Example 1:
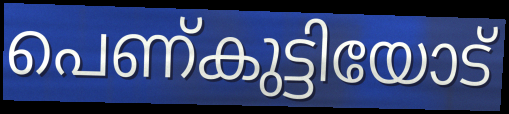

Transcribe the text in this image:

പെണ്കുട്ടിയോട്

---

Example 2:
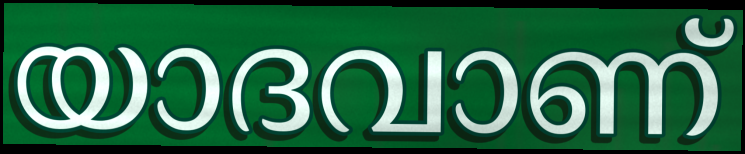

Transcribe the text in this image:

യാദവാണ്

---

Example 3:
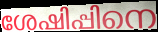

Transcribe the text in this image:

ശേഷിപ്പിനെ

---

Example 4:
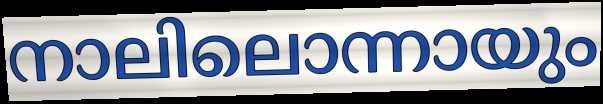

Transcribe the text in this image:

നാലിലൊന്നായും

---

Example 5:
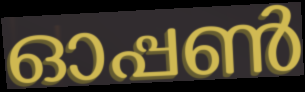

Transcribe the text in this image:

ഓപ്പൺ